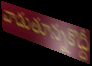
వాడుతూన్నకొద్దీ